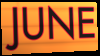
JUNE